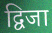
द्विजा